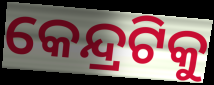
କେନ୍ଦ୍ରଟିକୁ